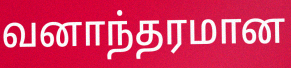
வனாந்தரமான